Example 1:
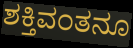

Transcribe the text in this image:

ಶಕ್ತಿವಂತನೂ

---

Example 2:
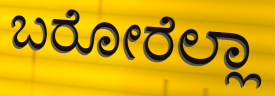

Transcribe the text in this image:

ಬರೋರೆಲ್ಲಾ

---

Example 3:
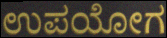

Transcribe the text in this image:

ಉಪಯೋಗ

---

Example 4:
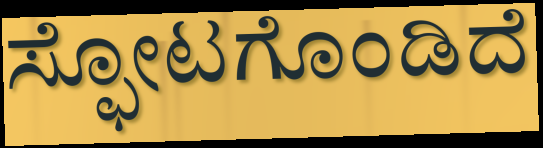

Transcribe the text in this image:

ಸ್ಫೋಟಗೊಂಡಿದೆ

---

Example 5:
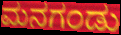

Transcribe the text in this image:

ಮನಗಂಡು